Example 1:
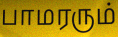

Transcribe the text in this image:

பாமரரும்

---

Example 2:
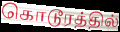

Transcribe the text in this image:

கொடூரத்தில்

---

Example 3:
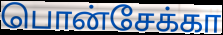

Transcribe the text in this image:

பொன்சேக்கா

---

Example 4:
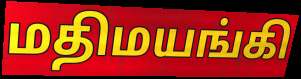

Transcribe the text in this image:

மதிமயங்கி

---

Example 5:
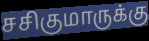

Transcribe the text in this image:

சசிகுமாருக்கு